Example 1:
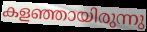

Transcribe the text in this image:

കളഞ്ഞായിരുന്നു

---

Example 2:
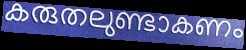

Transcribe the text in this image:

കരുതലുണ്ടാകണം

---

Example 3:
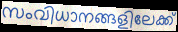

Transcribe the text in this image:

സംവിധാനങ്ങളിലേക്ക്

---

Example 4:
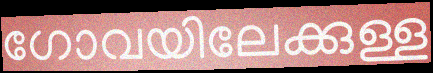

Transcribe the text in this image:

ഗോവയിലേക്കുള്ള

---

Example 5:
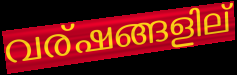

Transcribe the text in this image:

വര്ഷങ്ങളില്